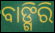
ବାଙ୍ଗିରି